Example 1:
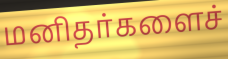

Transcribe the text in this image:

மனிதர்களைச்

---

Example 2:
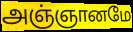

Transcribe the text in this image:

அஞ்ஞானமே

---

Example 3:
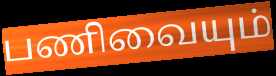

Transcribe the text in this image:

பணிவையும்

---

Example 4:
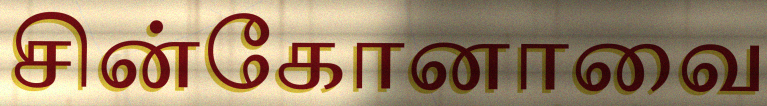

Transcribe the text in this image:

சின்கோனாவை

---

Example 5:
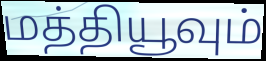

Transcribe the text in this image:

மத்தியூவும்